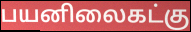
பயனிலைகட்கு